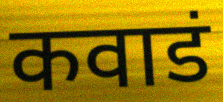
कवाडं